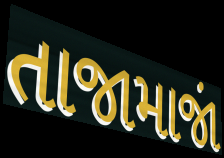
તાજામાજાં